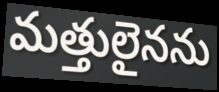
మత్తులైనను